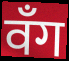
वँग